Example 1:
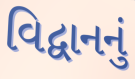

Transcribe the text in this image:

વિદ્વાનનું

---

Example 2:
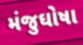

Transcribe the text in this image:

મંજુઘોષા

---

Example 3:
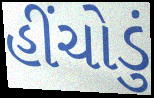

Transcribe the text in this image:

હીંચોડું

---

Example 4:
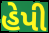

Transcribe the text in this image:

હેપી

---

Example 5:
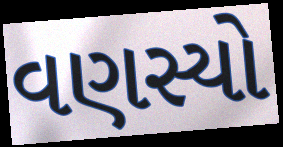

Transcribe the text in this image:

વણસ્યો